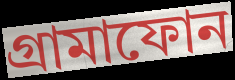
গ্রামাফোন